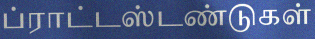
ப்ராட்டஸ்டண்டுகள்